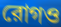
রোগও